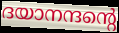
ദയാനന്ദന്റെ